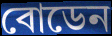
বোডেন